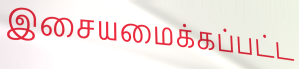
இசையமைக்கப்பட்ட